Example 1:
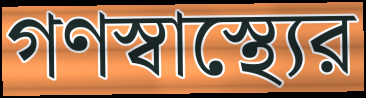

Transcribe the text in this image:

গণস্বাস্থ্যের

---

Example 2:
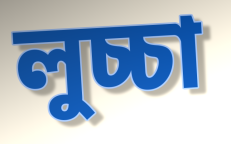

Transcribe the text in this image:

লুচ্চা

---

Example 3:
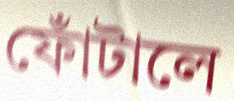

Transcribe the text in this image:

ফোঁটালে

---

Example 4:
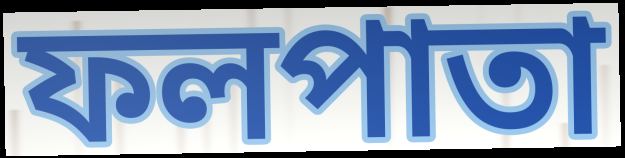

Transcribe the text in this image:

ফলপাতা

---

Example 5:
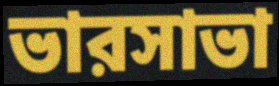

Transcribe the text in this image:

ভারসাভা